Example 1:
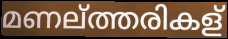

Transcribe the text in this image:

മണല്ത്തരികള്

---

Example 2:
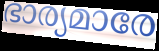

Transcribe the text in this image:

ഭാര്യമാരേ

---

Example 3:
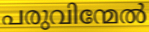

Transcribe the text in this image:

പരുവിന്മേൽ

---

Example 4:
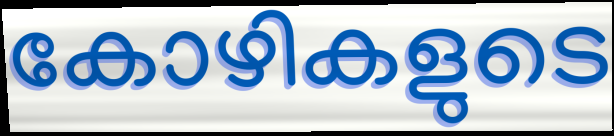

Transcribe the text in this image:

കോഴികളുടെ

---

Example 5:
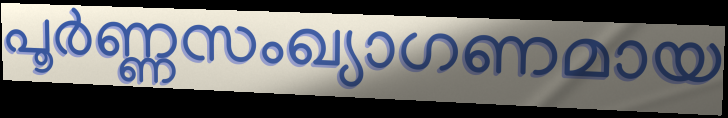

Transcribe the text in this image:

പൂർണ്ണസംഖ്യാഗണമായ